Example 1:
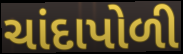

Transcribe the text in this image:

ચાંદાપોળી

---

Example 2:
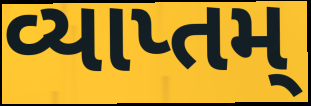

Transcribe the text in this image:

વ્યાપ્તમ્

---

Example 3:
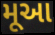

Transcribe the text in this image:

મૂઆ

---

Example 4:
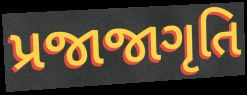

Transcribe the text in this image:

પ્રજાજાગૃતિ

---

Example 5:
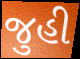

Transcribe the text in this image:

જુહી